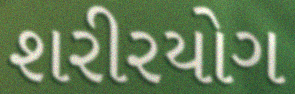
શરીરયોગ